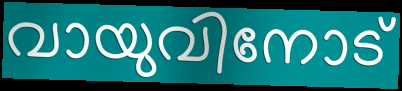
വായുവിനോട്